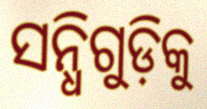
ସନ୍ଧିଗୁଡ଼ିକୁ